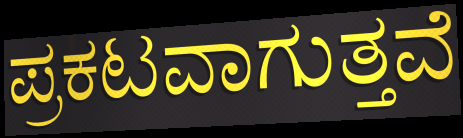
ಪ್ರಕಟವಾಗುತ್ತವೆ